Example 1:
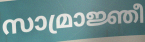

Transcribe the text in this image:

സാമ്രാജ്ഞീ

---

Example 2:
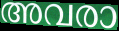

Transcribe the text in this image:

അവരാ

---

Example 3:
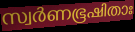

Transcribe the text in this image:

സ്വർണഭൂഷിതാഃ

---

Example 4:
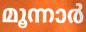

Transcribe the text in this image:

മൂന്നാർ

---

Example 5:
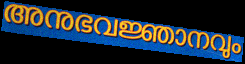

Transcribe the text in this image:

അനുഭവജ്ഞാനവും